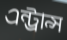
এন্ট্রান্স